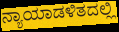
ನ್ಯಾಯಾಡಳಿತದಲ್ಲಿ